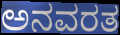
ಅನವರತ